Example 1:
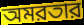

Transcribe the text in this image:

অমরতার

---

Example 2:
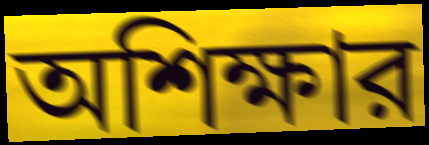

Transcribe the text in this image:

অশিক্ষার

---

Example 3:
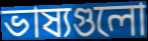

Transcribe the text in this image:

ভাষ্যগুলো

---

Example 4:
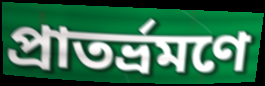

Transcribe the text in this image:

প্রাতর্ভ্রমণে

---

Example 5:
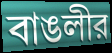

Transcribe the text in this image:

বাঙলীর